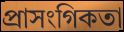
প্ৰাসংগিকতা